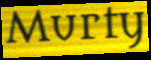
Murty